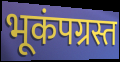
भूकंपग्रस्त